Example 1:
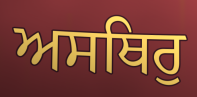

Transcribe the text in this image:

ਅਸਥਿਰੁ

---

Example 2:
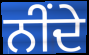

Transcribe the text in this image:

ਨੀਂਦੇ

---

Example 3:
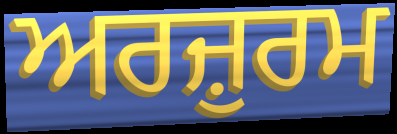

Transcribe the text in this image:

ਅਰਜ਼ੁਰਮ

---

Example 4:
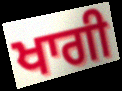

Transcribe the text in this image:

ਖਾਗੀ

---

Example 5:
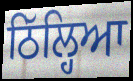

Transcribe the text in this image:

ਠਿੱਲ੍ਹਿਆ